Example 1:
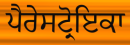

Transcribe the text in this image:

ਪੈਰੇਸਟ੍ਰੋਇਕਾ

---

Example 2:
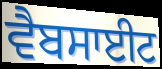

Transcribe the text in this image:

ਵੈਬਸਾਈਟ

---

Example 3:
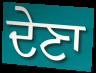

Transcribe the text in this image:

ਦੇਣਾ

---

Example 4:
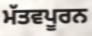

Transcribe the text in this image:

ਮੱਤਵਪੂਰਨ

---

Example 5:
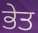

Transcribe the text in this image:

ਭੇਤ